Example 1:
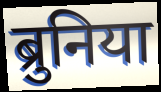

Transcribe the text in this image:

ब्रुनिया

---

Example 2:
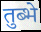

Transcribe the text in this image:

तुब्भे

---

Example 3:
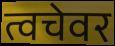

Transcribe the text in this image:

त्वचेवर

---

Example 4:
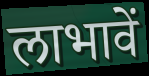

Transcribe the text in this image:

लाभावें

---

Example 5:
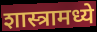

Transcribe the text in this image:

शास्त्रामध्ये